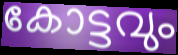
കോട്ടവും